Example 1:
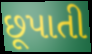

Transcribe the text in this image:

છૂપાતી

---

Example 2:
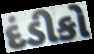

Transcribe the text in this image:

દંડીકો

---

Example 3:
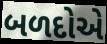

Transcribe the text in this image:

બળદોએ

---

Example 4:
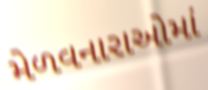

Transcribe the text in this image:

મેળવનારાઓમાં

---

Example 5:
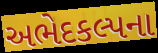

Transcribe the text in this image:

અભેદકલ્પના